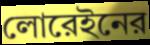
লোরেইনের